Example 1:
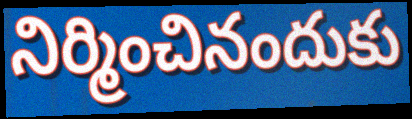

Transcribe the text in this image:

నిర్మించినందుకు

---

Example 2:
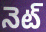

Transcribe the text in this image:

నెట్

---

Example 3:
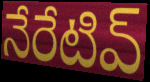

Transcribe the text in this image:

నేరేటివ్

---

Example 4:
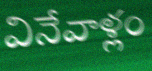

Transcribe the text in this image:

వినేవాళ్లం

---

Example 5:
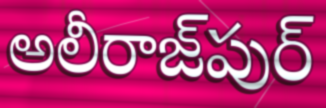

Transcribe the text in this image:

అలీరాజ్‌పుర్